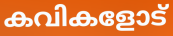
കവികളോട്